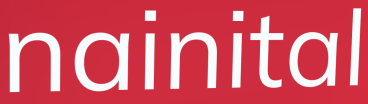
nainital